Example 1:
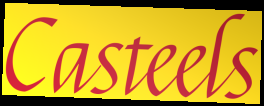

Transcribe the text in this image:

Casteels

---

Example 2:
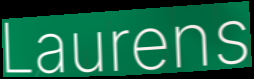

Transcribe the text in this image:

Laurens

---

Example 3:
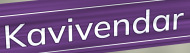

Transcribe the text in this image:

Kavivendar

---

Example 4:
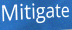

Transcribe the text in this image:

Mitigate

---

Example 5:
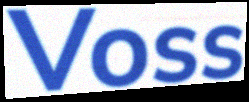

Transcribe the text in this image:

Voss